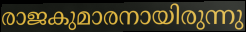
രാജകുമാരനായിരുന്നു